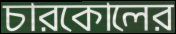
চারকোলের